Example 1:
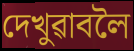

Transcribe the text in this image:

দেখুৱাবলৈ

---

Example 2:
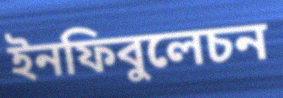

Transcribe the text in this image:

ইনফিবুলেচন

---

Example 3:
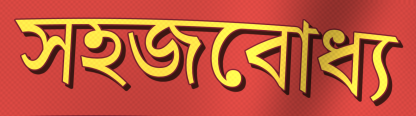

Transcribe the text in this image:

সহজবোধ্য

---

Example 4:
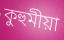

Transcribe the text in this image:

কুহুমীয়া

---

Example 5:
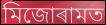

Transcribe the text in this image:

মিজোৰামত